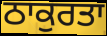
ਠਾਕੁਰਤਾ